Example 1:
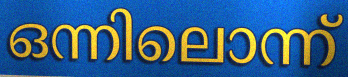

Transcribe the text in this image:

ഒന്നിലൊന്ന്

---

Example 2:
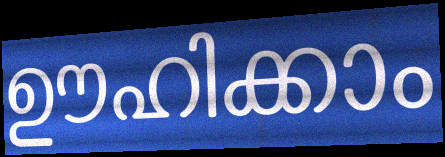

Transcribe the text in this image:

ഊഹിക്കാം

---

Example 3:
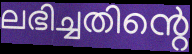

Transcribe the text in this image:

ലഭിച്ചതിന്റെ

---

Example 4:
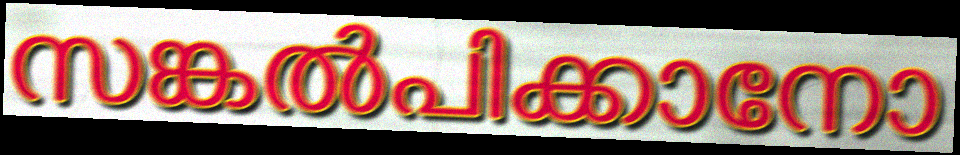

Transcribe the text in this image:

സങ്കൽപിക്കാനോ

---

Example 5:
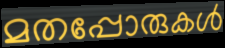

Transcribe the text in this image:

മതപ്പോരുകൾ